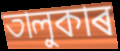
তালুকাৰ